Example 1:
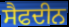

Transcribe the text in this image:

ਸੈਫਦੀਨ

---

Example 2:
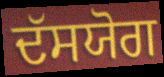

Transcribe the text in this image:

ਦੱਸਯੋਗ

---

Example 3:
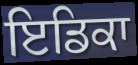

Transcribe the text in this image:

ਇਡਿਕਾ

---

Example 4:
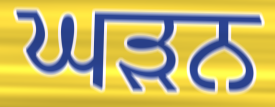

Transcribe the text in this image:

ਘੜਨ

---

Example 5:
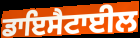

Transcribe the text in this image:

ਡਾਇਸੈਟਾਈਲ